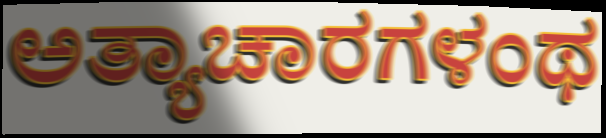
ಅತ್ಯಾಚಾರಗಳಂಥ